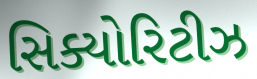
સિક્યોરિટીઝ